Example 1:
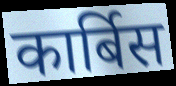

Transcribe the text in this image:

कार्बिस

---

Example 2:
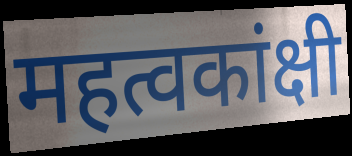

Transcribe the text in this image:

महत्वकांक्षी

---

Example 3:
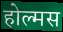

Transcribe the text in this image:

होल्मस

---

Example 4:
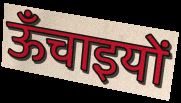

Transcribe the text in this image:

ऊँचाइयों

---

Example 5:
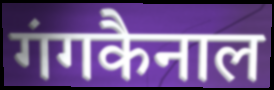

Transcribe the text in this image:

गंगकैनाल